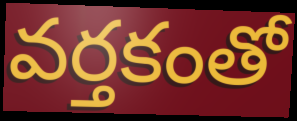
వర్తకంతో